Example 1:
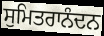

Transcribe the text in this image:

ਸੁਮਿਤਰਾਨੰਦਨ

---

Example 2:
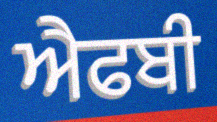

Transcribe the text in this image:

ਐਫਬੀ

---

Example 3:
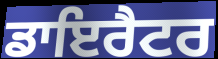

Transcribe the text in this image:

ਡਾਇਰੈਟਰ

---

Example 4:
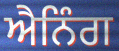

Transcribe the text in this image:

ਐਨਿੰਗ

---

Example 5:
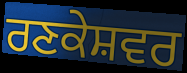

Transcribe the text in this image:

ਰਣਕੇਸ਼ਵਰ